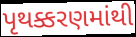
પૃથક્કરણમાંથી